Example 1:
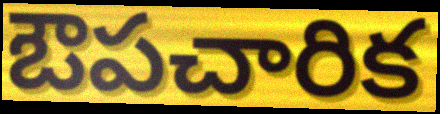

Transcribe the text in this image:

ఔపచారిక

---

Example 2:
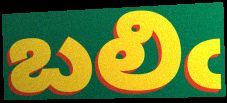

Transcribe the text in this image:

బలిఁ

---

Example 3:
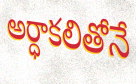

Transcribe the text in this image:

అర్ధాకలితోనే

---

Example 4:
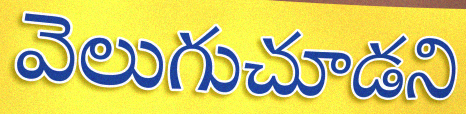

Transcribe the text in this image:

వెలుగుచూడని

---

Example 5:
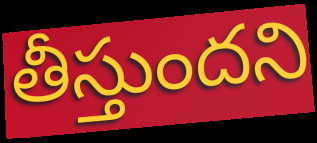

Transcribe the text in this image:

తీస్తుందని